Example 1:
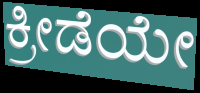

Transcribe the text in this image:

ಕ್ರೀಡೆಯೇ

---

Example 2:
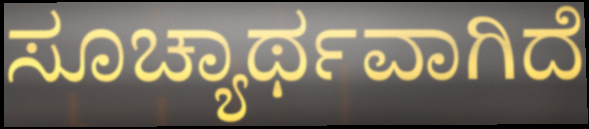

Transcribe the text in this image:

ಸೂಚ್ಯಾರ್ಥವಾಗಿದೆ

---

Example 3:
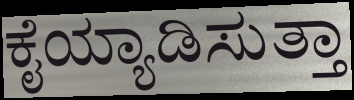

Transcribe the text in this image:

ಕೈಯ್ಯಾಡಿಸುತ್ತಾ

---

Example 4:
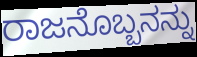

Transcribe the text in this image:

ರಾಜನೊಬ್ಬನನ್ನು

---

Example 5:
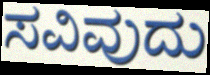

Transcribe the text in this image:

ಸವಿವುದು